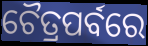
ଚୈତ୍ରପର୍ବରେ